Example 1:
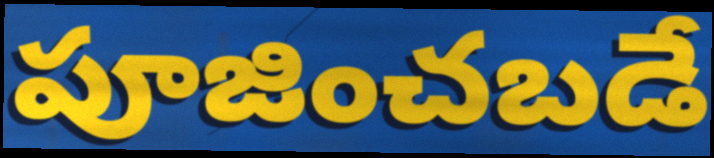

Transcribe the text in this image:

పూజించబడే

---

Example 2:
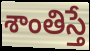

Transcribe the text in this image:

శాంతిస్తే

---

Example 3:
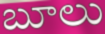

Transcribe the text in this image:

బూలు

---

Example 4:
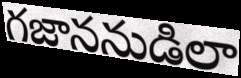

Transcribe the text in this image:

గజాననుడిలా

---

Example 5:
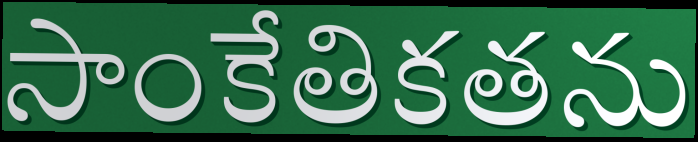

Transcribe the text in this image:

సాంకేతికతను